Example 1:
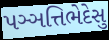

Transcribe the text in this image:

પઞ્ઞત્તિભેદેસુ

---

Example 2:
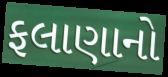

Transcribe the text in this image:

ફલાણાનો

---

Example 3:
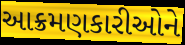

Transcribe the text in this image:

આક્રમણકારીઓને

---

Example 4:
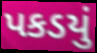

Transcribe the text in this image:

પકડયું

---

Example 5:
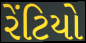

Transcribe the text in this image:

રેંટિયો